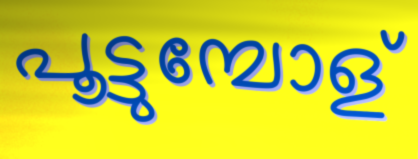
പൂട്ടുമ്പോള്